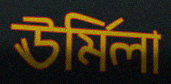
ঊর্মিলা